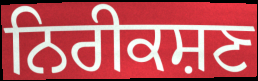
ਨਿਰੀਕਸ਼ਣ